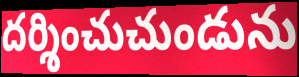
దర్శించుచుండును